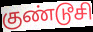
குண்டூசி